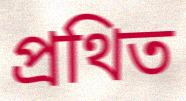
প্রথিত